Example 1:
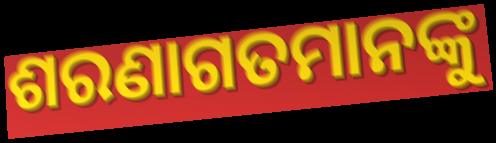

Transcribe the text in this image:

ଶରଣାଗତମାନଙ୍କୁ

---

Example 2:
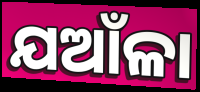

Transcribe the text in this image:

ଯଆଁଳା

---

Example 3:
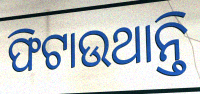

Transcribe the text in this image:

ଫିଟାଉଥାନ୍ତି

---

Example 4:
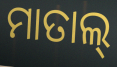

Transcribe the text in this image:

ମାତାଲ୍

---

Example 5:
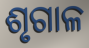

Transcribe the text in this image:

ଶୃଗାଳ